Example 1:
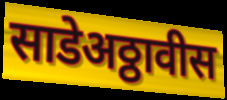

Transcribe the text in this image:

साडेअठ्ठावीस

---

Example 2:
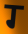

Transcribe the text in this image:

ग्‍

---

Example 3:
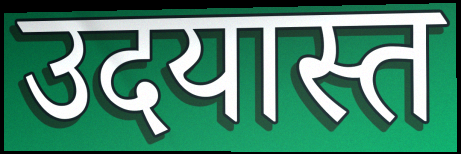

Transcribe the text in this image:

उदयास्त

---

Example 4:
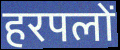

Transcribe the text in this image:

हरपलों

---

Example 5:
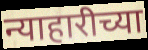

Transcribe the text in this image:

न्याहारीच्या